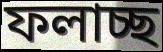
ফলাচ্ছ